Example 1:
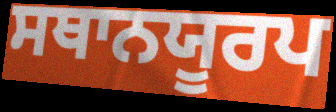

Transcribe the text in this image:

ਸਥਾਨਯੂਰਪ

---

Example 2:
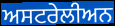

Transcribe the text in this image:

ਅਸਟਰੇਲੀਅਨ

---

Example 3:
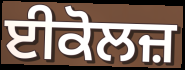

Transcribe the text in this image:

ਈਕੋਲਜ਼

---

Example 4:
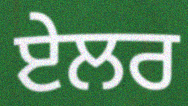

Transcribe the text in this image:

ਏਲਰ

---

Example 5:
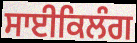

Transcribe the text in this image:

ਸਾਈਕਿਲੰਗ